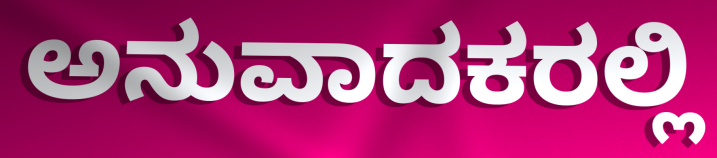
ಅನುವಾದಕರಲ್ಲಿ